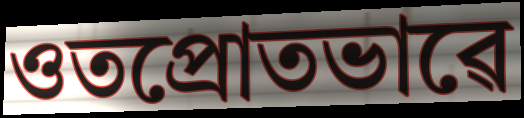
ওতপ্ৰোতভাৱে